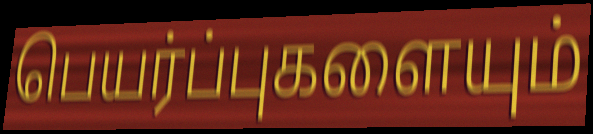
பெயர்ப்புகளையும்